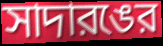
সাদারঙের